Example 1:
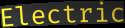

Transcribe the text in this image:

Electric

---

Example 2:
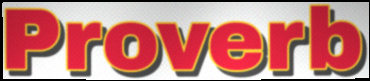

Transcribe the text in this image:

Proverb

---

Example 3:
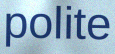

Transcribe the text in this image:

polite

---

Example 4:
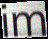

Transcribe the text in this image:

im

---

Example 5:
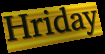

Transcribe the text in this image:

Hriday